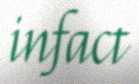
infact